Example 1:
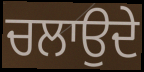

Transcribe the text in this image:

ਚਲਾਉਦੇ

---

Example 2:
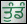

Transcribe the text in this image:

ਤੁੰਡੰ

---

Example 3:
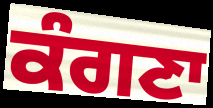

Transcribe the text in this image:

ਕੰਗਣਾ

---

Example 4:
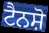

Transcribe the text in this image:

ਟੈਨਸ਼ੋ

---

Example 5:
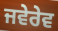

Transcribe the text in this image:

ਜਵੇਰੇਵ